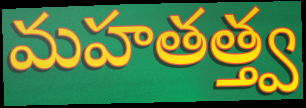
మహతత్త్వ